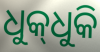
ଧୁକ୍‌ଧୁକି